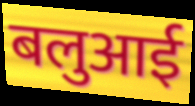
बलुआई